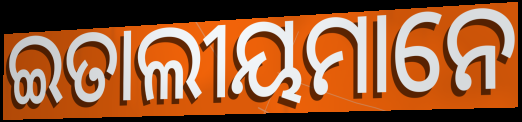
ଇତାଲୀୟମାନେ